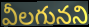
వీలగునని